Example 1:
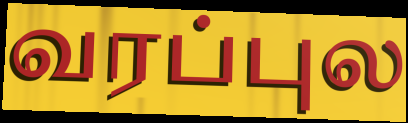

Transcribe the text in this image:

வரப்புல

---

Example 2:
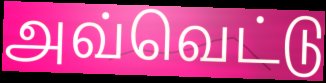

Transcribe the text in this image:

அவ்வெட்டு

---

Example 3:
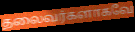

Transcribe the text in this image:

தலைவர்களாகவே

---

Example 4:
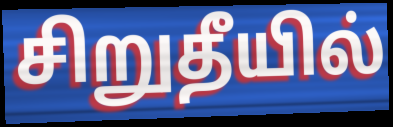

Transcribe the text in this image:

சிறுதீயில்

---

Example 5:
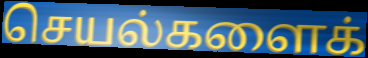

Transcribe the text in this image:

செயல்களைக்